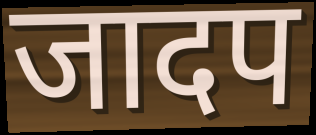
जादप